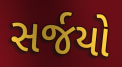
સર્જયો